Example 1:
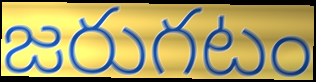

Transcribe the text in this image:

జరుగటం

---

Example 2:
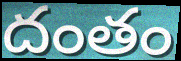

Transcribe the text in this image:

దంతం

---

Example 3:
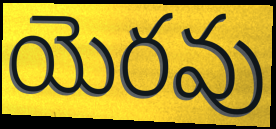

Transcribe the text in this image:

యెరవు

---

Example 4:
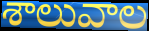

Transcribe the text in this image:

శాలువాల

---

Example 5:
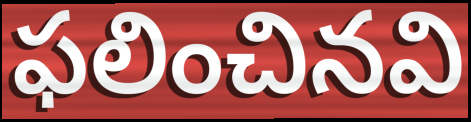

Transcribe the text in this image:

ఫలించినవి